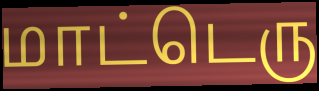
மாட்டெரு